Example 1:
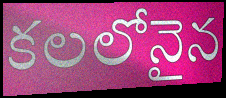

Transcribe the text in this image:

కలలోనైన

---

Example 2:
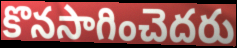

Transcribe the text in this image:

కొనసాగించెదరు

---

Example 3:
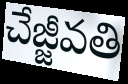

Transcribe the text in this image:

చేజ్జీవతి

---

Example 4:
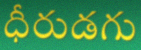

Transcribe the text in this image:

ధీరుడగు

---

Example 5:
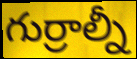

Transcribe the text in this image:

గుర్రాల్నీ